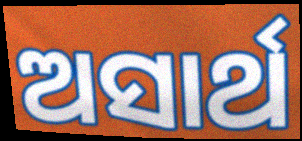
ଅସାର୍ଥ